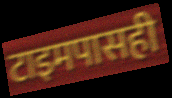
टाइमपासही